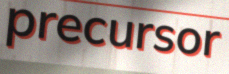
precursor